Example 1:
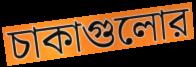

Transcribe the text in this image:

চাকাগুলোর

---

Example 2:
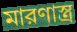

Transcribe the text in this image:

মারণাস্ত্র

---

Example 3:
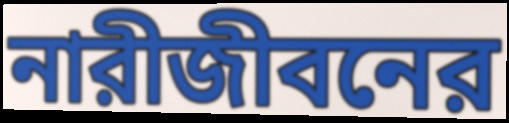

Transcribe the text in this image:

নারীজীবনের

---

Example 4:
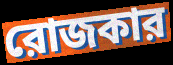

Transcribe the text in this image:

রোজকার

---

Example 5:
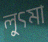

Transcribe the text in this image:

লুৎমা